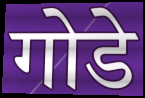
गोडे